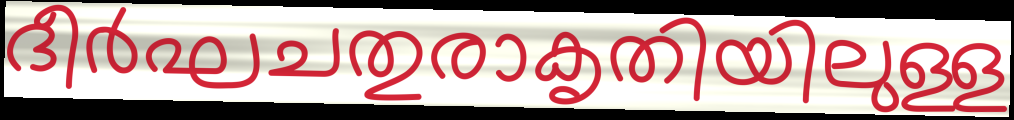
ദീർഘചതുരാകൃതിയിലുള്ള